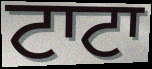
ਟਾਟਾ